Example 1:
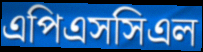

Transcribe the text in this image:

এপিএসসিএল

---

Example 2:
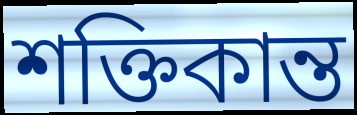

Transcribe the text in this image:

শক্তিকান্ত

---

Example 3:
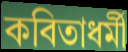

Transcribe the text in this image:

কবিতাধর্মী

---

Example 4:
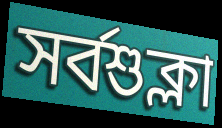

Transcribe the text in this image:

সর্বশুক্লা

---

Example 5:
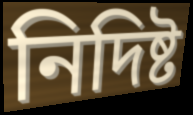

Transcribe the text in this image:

নিদিষ্ট